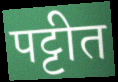
पट्टीत